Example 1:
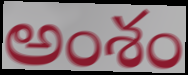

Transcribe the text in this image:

అంశం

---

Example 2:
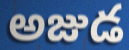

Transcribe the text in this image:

అజుడ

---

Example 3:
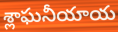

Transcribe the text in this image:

శ్లాఘనీయాయ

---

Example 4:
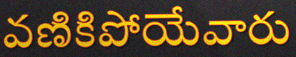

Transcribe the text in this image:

వణికిపోయేవారు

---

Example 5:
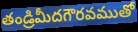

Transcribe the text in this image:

తండ్రిమీదగౌరవముతో